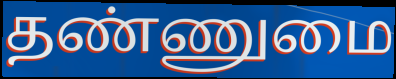
தண்ணுமை